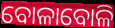
ବୋଳାବୋଳି